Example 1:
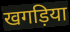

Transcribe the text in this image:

खगड़िया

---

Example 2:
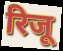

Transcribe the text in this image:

रिजू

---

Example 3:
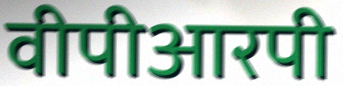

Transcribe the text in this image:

वीपीआरपी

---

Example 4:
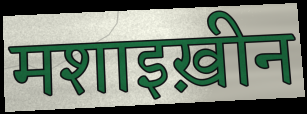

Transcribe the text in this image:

मशाइख़ीन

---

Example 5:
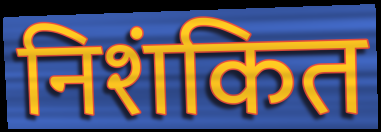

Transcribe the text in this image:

निशंकित